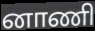
னாணி